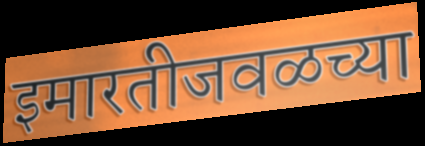
इमारतीजवळच्या